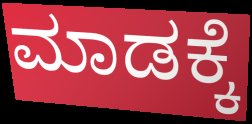
ಮಾಡಕ್ಕೆ